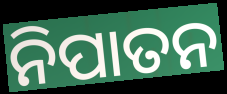
ନିପାତନ